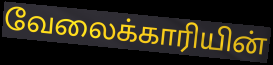
வேலைக்காரியின்